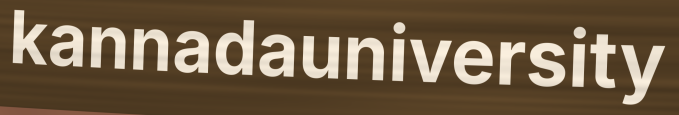
kannadauniversity